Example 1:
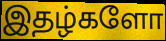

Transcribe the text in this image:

இதழ்களோ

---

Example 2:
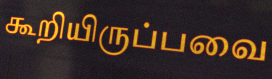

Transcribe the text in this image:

கூறியிருப்பவை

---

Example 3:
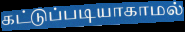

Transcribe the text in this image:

கட்டுப்படியாகாமல்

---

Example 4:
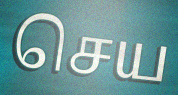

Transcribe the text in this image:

செய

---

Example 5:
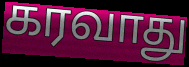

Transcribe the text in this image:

கரவாது